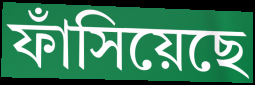
ফাঁসিয়েছে